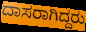
ದಾಸರಾಗಿದ್ದರು